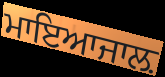
ਮਾਇਆਜਾਲ਼